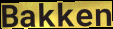
Bakken